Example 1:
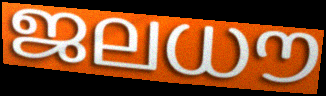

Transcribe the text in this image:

ജലധൗ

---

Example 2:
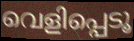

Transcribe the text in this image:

വെളിപ്പെടൂ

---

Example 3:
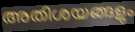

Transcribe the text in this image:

അതിശയങ്ങളും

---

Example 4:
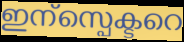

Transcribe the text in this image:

ഇന്സ്പെക്ടറെ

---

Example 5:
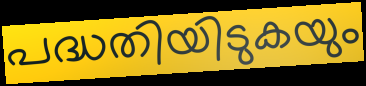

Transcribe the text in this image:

പദ്ധതിയിടുകയും